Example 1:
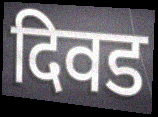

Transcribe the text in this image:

दिवड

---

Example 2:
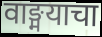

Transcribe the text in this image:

वाङ्मयाचा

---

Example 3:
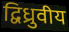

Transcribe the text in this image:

द्विध्रुवीय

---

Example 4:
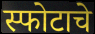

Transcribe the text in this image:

स्फोटाचे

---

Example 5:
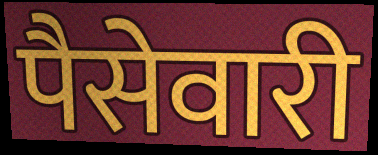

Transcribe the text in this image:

पैसेवारी